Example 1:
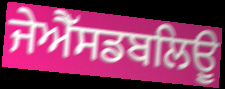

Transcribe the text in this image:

ਜੇਐੱਸਡਬਲਿਊ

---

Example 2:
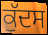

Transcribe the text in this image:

ਕੁੱਦਸ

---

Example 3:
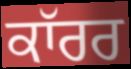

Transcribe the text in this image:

ਕਾੱਰਰ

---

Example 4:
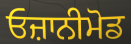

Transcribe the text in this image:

ਓਜ਼ਾਨੀਮੋਡ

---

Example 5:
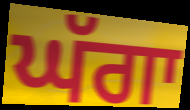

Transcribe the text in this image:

ਘੱਗਾ